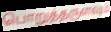
பொறுத்தருளவும்